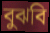
বুঝবি